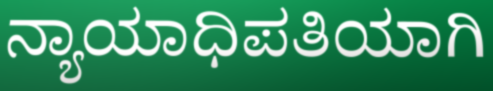
ನ್ಯಾಯಾಧಿಪತಿಯಾಗಿ